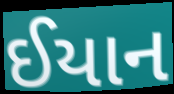
ઈયાન